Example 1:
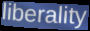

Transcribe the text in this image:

liberality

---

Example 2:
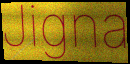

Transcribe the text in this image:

Jigna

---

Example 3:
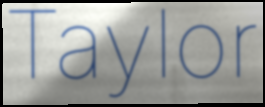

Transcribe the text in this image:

Taylor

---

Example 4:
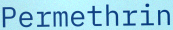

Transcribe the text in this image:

Permethrin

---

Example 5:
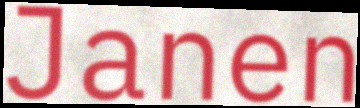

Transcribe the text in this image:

Janen